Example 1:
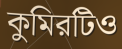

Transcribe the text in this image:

কুমিরটিও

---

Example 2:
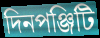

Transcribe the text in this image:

দিনপঞ্জিটি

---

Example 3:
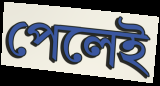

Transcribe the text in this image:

পেলেই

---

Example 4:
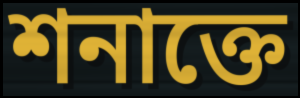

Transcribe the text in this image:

শনাক্তে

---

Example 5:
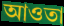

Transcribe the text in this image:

আওতা